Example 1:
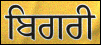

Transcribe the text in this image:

ਬਿਗਰੀ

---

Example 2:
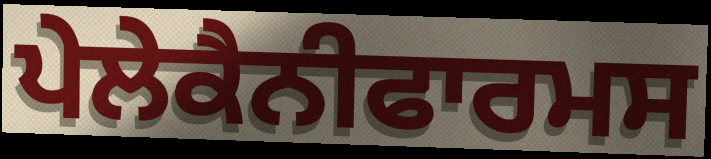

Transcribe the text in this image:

ਪੇਲੇਕੈਨੀਫਾਰਮਸ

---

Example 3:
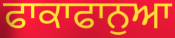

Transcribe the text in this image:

ਫਾਕਾਫਾਨੁਆ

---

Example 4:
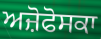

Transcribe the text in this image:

ਅਜ਼ੋਫੋਸਕਾ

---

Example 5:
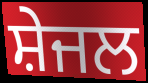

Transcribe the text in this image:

ਸ਼ੇਜਲ